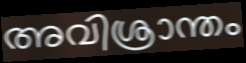
അവിശ്രാന്തം